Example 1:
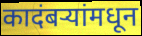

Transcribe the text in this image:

कादंबर्‍यांमधून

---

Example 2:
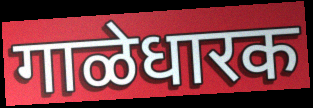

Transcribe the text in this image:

गाळेधारक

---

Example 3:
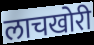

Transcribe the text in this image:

लाचखोरी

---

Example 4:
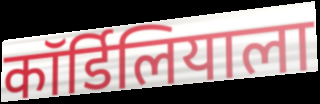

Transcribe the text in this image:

कॉर्डिलियाला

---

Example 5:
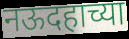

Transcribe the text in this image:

नऊदहाच्या